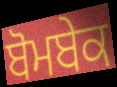
ਬੋਮਬੇਕ